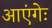
आएंगेः